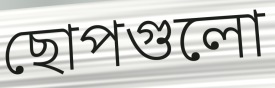
ছোপগুলো